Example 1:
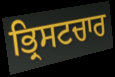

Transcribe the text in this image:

ਭ੍ਰਿਸਟਚਾਰ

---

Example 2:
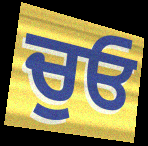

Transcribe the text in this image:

ਚੁਓ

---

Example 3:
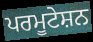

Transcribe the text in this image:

ਪਰਮੂਟੇਸ਼ਨ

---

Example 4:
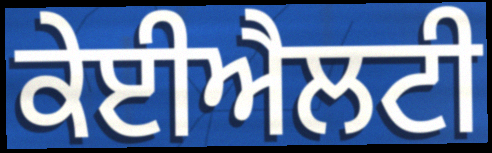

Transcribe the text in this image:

ਕੇਈਐਲਟੀ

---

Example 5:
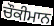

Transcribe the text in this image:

ਚੌਕੀਮਾਨ